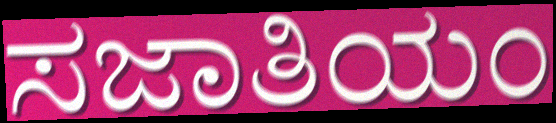
ಸಜಾತಿಯಂ